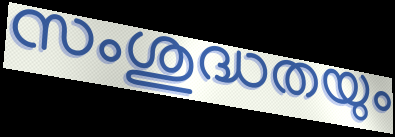
സംശുദ്ധതയും